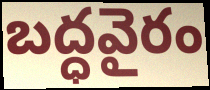
బద్ధవైరం